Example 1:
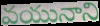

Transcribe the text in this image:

వయునాని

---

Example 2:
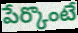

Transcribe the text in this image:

పేర్కొంటే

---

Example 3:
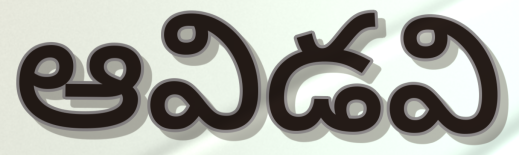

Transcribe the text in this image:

ఆవిడవి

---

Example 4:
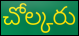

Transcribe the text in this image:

చోల్కరు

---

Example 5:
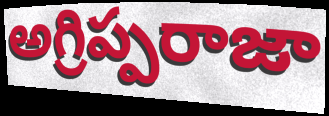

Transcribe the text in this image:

అగ్రిప్పరాజా